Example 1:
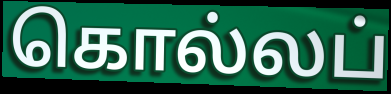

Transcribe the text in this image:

கொல்லப்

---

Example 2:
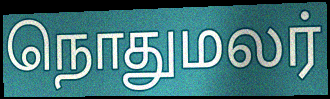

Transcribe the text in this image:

நொதுமலர்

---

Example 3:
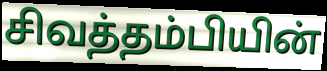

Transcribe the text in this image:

சிவத்தம்பியின்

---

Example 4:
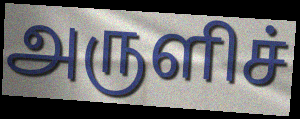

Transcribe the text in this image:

அருளிச்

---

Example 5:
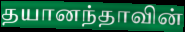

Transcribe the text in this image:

தயானந்தாவின்